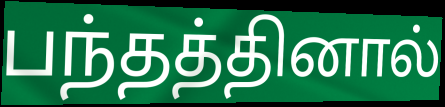
பந்தத்தினால்